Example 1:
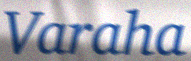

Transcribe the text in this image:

Varaha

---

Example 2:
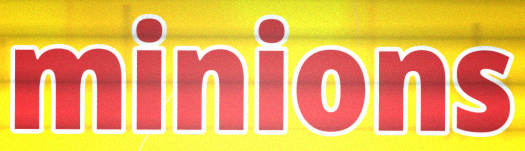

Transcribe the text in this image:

minions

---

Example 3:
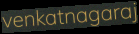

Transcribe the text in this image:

venkatnagaraj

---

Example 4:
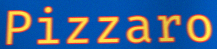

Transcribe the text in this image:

Pizzaro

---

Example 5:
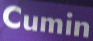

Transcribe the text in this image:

Cumin